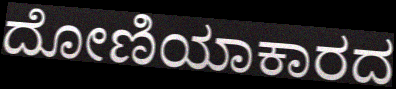
ದೋಣಿಯಾಕಾರದ